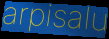
arpisalu